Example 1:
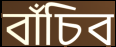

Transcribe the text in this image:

বাঁচিব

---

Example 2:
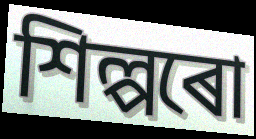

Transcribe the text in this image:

শিল্পৰো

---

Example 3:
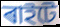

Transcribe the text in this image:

ৰাইটে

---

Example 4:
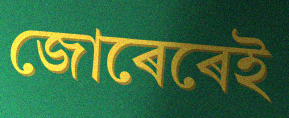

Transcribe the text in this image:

জোৰেৰেই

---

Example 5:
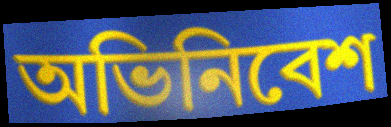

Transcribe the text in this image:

অভিনিবেশ